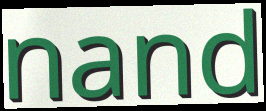
nand